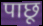
पाछू